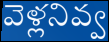
వెళ్లనివ్వ